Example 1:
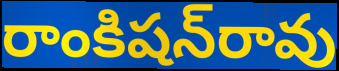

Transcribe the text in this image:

రాంకిషన్‌రావు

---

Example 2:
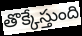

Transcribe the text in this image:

తొక్కేస్తుంది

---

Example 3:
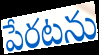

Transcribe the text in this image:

పేరటను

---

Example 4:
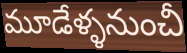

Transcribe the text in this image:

మూడేళ్ళనుంచీ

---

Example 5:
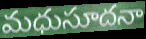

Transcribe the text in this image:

మధుసూదనా